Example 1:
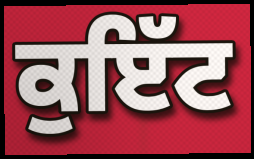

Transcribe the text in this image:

ਕੁਇੱਟ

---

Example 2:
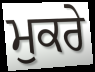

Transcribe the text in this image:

ਮੁਕਰੇ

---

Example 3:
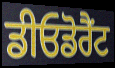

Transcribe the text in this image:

ਡੀਓਡੋਰੈਂਟ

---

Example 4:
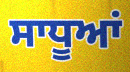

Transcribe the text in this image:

ਸਾਧੂਆਂ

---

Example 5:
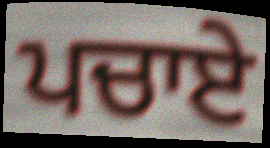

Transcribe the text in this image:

ਪਚਾਏ